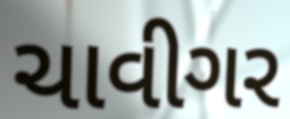
ચાવીગર